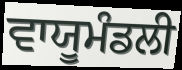
ਵਾਯੂਮੰਡਲੀ